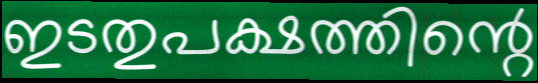
ഇടതുപക്ഷത്തിന്റെ